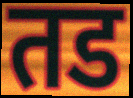
तड